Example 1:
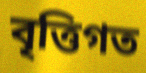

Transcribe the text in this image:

বৃত্তিগত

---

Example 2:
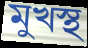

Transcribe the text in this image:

মুখস্থ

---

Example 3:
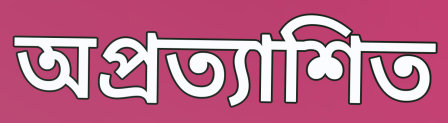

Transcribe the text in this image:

অপ্ৰত্যাশিত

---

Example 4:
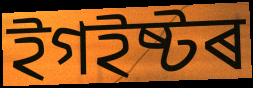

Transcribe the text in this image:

ইগইষ্টৰ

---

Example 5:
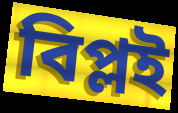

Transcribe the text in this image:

বিপ্লই